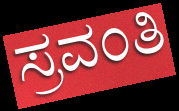
ಸ್ರವಂತಿ